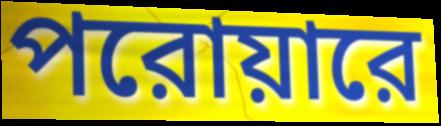
পরোয়ারে